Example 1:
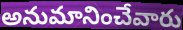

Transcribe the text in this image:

అనుమానించేవారు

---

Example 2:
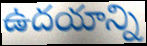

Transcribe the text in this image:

ఉదయాన్ని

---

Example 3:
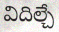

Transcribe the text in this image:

విదిల్చే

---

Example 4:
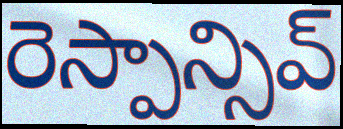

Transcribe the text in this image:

రెస్పాన్సివ్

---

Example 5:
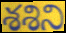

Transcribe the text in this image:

శశిని